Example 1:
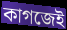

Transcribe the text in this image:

কাগজেই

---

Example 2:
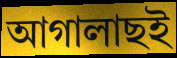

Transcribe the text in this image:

আগালাছই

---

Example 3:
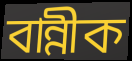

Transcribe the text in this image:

বান্নীক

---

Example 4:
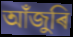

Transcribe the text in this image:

আঁজুৰি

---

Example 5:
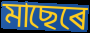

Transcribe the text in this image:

মাছেৰে